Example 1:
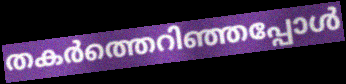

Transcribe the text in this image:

തകർത്തെറിഞ്ഞപ്പോൾ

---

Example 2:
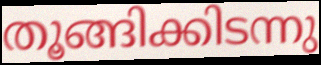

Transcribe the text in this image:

തൂങ്ങിക്കിടന്നു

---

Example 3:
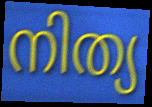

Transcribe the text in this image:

നിത്യ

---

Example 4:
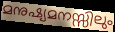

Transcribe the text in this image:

മനുഷ്യമനസ്സിലും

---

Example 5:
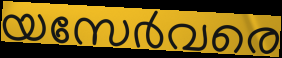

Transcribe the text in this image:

യസേർവരെ